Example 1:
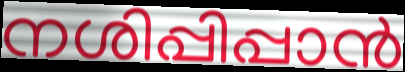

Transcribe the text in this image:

നശിപ്പിപ്പാൻ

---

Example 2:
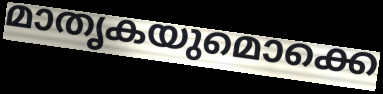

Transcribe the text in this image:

മാതൃകയുമൊക്കെ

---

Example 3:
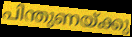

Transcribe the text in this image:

പിന്തുണയ്ക്കു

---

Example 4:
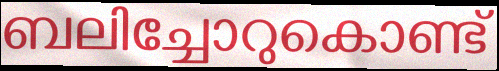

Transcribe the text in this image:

ബലിച്ചോറുകൊണ്ട്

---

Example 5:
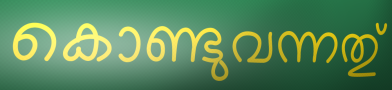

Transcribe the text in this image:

കൊണ്ടുവന്നതു്